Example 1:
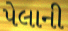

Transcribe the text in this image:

પેલાની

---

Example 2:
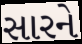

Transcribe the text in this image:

સારને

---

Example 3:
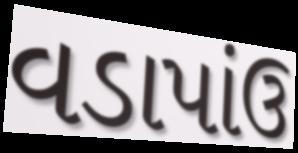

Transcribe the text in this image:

વડાપાંઉ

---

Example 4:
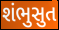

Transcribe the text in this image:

શંભુસુત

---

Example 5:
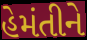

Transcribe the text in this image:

હેમંતીને